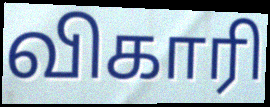
விகாரி